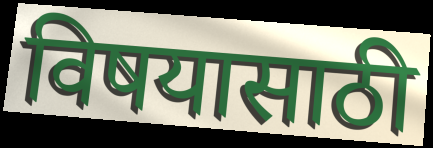
विषयासाठी